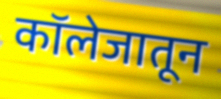
कॉलेजातून